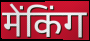
मेंकिंग